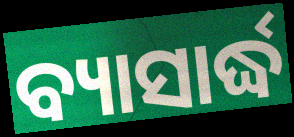
ବ୍ୟାସାର୍ଦ୍ଧ